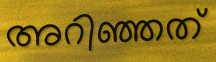
അറിഞ്ഞത്